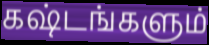
கஷ்டங்களும்